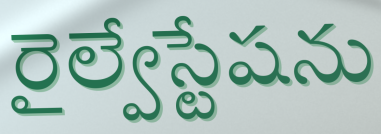
రైల్వేస్టేషను